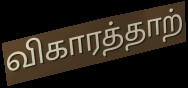
விகாரத்தாற்